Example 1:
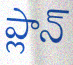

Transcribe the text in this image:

ప్లాన్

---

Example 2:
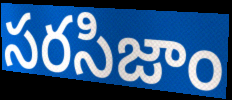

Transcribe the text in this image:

సరసిజాం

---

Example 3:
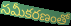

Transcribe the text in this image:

సమీకరణంతో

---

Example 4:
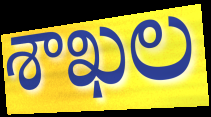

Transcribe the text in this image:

శాఖల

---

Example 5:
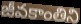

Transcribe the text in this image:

జీవకాంతిని